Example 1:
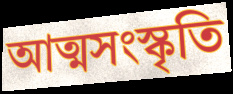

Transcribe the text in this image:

আত্মসংস্কৃতি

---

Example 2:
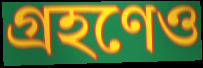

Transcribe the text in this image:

গ্রহণেও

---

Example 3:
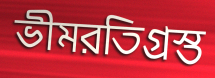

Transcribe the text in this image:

ভীমরতিগ্রস্ত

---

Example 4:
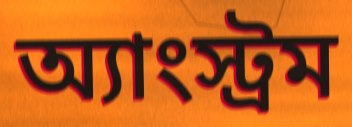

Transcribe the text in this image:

অ্যাংস্ট্রম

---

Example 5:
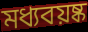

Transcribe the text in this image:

মধ্যবয়ষ্ক